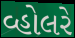
વ્હોલરે